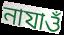
নাযাওঁ